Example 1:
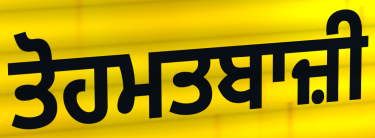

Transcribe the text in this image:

ਤੋਹਮਤਬਾਜ਼ੀ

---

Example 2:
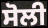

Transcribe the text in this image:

ਸੋਲੀ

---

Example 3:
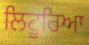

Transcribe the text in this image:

ਲਿਟੂਰਿਆ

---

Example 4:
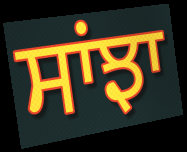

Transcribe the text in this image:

ਸਾਂਝਾ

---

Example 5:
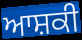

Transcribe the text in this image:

ਆਸ਼ਕੀ